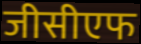
जीसीएफ